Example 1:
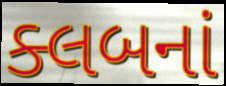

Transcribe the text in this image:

ક્લબનાં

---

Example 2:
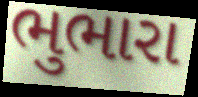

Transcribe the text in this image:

ભુભારા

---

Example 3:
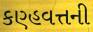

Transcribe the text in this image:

કણ્હવત્તની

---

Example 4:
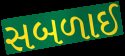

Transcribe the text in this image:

સબળાઈ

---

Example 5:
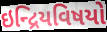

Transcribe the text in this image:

ઇન્દ્રિયવિષયો